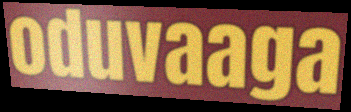
oduvaaga